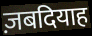
ज़बदियाह